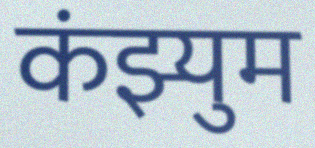
कंझ्युम